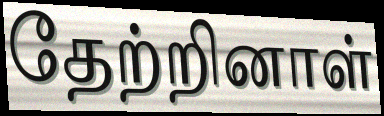
தேற்றினாள்